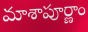
మాశాపూర్ణాం